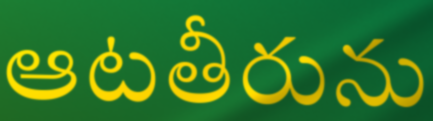
ఆటతీరును